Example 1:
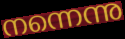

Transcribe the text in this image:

നന്നെന്നു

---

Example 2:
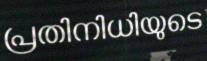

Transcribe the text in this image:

പ്രതിനിധിയുടെ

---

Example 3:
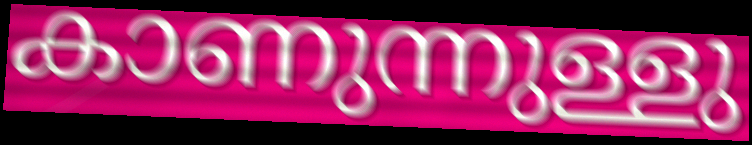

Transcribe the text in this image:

കാണുന്നുള്ളു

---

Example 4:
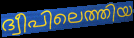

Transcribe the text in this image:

ദ്വീപിലെത്തിയ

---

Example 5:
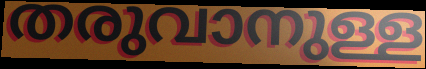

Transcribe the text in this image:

തരുവാനുള്ള